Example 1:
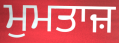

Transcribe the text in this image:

ਮੁਮਤਾਜ਼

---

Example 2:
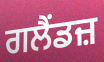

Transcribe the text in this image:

ਗਲੈਂਡਜ਼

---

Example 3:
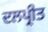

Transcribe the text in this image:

ਦਲਪ੍ਰੀਤ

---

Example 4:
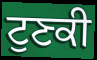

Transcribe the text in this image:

ਟੁਣਕੀ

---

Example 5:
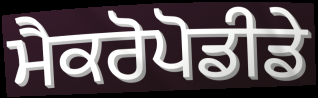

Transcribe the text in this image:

ਮੈਕਰੋਪੋਡੀਡੇ